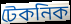
টেকনিক